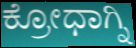
ಕ್ರೋಧಾಗ್ನಿ